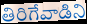
తిరిగేవాడిని